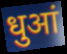
धुआं